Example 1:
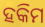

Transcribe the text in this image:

ହକିମ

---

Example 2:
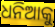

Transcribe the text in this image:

ଧନିଆକୁ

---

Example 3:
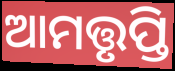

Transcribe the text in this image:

ଆମତ୍ତୃପ୍ତି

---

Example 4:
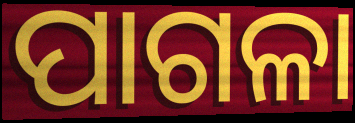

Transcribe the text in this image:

ପାଗଳା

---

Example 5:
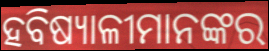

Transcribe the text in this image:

ହବିଷ୍ୟାଳୀମାନଙ୍କର